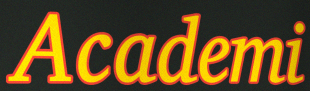
Academi